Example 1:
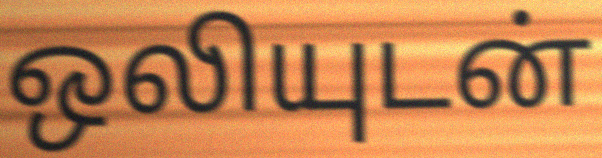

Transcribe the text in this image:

ஒலியுடன்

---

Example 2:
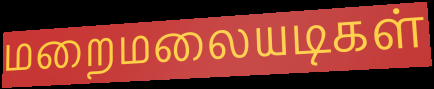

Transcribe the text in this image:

மறைமலையடிகள்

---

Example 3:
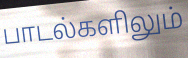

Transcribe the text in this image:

பாடல்களிலும்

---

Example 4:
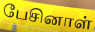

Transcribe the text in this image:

பேசினாள்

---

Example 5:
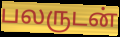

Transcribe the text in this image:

பலருடன்